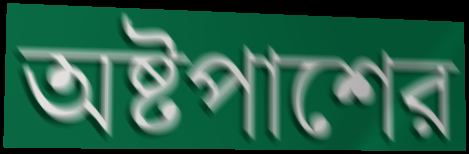
অষ্টপাশের